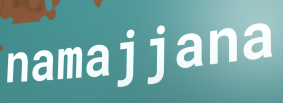
namajjana